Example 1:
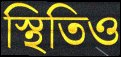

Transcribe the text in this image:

স্থিতিও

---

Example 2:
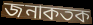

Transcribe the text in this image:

জনাকতক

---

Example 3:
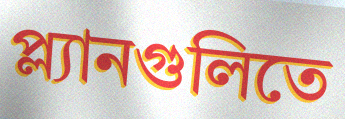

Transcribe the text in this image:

প্ল্যানগুলিতে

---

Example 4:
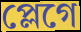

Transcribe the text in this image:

প্লেগে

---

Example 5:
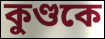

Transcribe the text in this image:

কুণ্ডকে